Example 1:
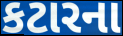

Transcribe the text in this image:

કટારના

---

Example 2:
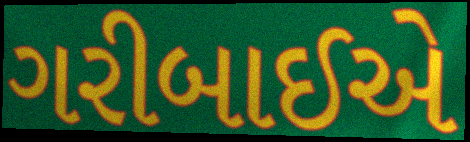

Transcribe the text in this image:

ગરીબાઈએ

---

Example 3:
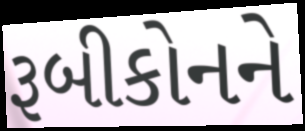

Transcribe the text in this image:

રૂબીકોનને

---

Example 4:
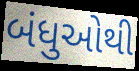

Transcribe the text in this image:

બંધુઓથી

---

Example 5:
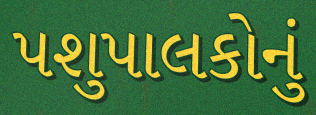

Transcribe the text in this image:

પશુપાલકોનું